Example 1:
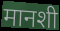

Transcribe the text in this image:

मानशी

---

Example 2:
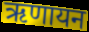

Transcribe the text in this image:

ऋणायन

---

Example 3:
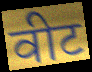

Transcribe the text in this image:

वीट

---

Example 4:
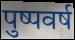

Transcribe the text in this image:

पुष्पवर्ष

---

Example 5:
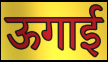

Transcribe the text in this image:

ऊगाई